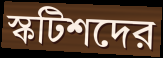
স্কটিশদের